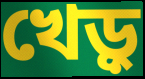
খেড়ু